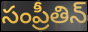
సంప్రీతిన్